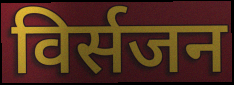
विर्सजन